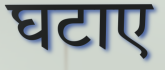
घटाए